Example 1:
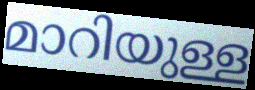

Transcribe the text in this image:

മാറിയുള്ള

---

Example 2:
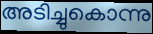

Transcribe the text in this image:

അടിച്ചുകൊന്നു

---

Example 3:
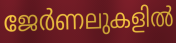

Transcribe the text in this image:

ജേർണലുകളിൽ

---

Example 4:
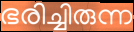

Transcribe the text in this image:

ഭരിച്ചിരുന്ന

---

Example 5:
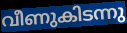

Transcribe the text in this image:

വീണുകിടന്നു